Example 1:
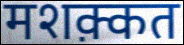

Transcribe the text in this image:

मशक़्कत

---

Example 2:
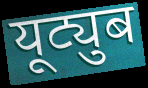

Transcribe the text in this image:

यूट्युब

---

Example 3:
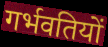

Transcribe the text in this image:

गर्भवतियों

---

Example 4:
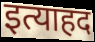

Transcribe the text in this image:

इत्याहद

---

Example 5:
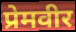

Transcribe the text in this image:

प्रेमवीर